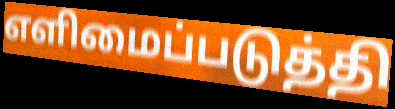
எளிமைப்படுத்தி